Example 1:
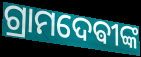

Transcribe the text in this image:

ଗ୍ରାମଦେଵୀଙ୍କ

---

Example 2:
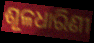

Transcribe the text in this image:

ଶୂଳଧାରିଣୀ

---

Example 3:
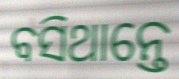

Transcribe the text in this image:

ବସିଥାନ୍ତେ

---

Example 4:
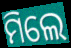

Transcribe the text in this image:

ମିଲେ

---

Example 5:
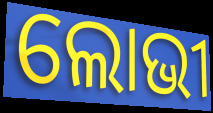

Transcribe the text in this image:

ଲୋଭୀ